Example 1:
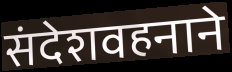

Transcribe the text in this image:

संदेशवहनाने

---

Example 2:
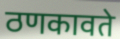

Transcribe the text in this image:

ठणकावते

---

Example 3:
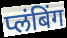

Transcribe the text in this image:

प्लंबिंग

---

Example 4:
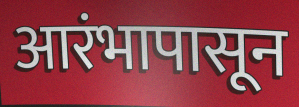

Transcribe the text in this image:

आरंभापासून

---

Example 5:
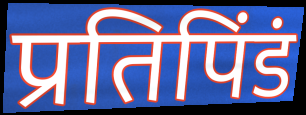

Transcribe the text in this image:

प्रतिपिंडं